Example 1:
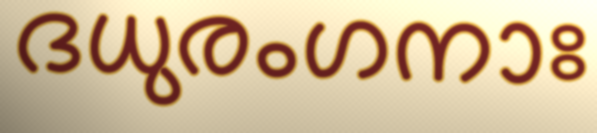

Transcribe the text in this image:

ദധുരംഗനാഃ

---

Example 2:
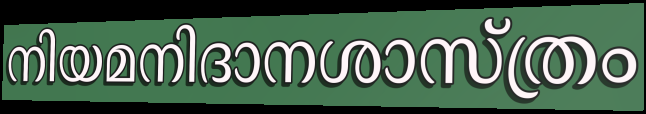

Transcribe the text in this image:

നിയമനിദാനശാസ്ത്രം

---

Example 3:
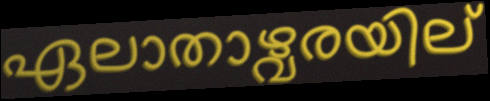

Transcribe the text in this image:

ഏലാതാഴ്വരയില്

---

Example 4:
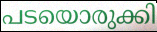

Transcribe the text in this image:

പടയൊരുക്കി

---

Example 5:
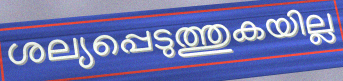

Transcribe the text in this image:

ശല്യപ്പെടുത്തുകയില്ല